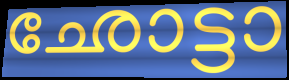
ഛോട്ടാ